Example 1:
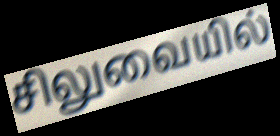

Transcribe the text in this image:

சிலுவையில்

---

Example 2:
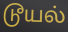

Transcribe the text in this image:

டூயல்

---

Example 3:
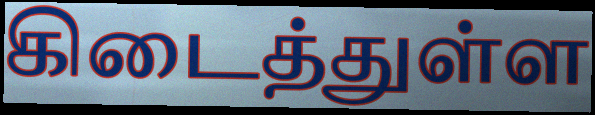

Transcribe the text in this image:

கிடைத்துள்ள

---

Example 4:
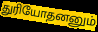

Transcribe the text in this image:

துரியோதனனும்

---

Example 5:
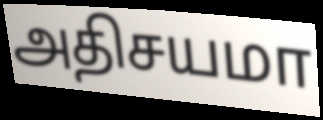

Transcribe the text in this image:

அதிசயமா